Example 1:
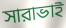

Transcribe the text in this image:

সারাভাই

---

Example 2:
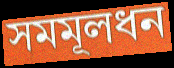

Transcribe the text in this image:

সমমূলধন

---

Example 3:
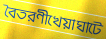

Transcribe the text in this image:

বৈতরণীখেয়াঘাটে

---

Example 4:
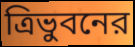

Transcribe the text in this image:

ত্রিভুবনের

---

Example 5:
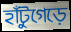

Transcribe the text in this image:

হাঁটুগেড়ে